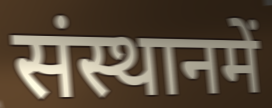
संस्थानमें